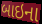
બાઇના